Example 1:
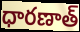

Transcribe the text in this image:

ధారణాత్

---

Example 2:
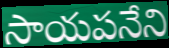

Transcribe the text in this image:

సాయపనేని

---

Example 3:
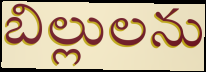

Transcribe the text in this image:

బిల్లులను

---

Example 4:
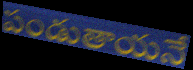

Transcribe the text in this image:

పండుతాయనే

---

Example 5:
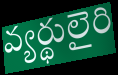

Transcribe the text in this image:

వ్యర్థులైరి